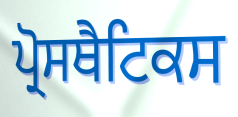
ਪ੍ਰੋਸਥੈਟਿਕਸ